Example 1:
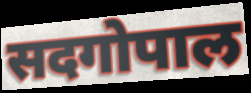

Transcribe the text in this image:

सदगोपाल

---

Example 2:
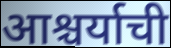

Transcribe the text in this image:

आश्चर्याची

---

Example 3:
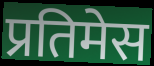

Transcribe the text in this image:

प्रतिमेस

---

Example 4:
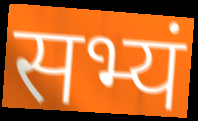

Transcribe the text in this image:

सभ्यं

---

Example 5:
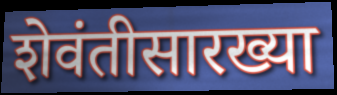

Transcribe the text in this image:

शेवंतीसारख्या